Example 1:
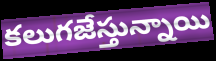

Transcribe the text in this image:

కలుగజేస్తున్నాయి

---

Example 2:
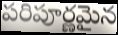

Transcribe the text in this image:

పరిపూర్ణమైన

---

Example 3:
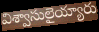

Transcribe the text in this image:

విశ్వాసులైయ్యారు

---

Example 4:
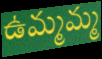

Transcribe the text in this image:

ఉమ్మమ్మ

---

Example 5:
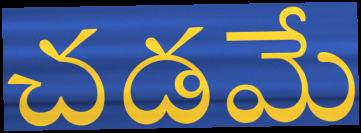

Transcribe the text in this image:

చడమే